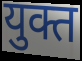
युक्त